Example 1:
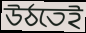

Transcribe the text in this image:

উঠতেই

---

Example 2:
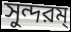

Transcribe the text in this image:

সুন্দরম্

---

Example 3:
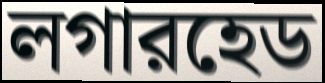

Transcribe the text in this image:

লগারহেড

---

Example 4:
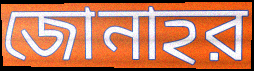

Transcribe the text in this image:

জোনাহর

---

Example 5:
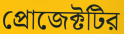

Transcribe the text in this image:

প্রোজেক্টটির